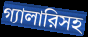
গ্যালারিসহ